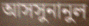
আসসুনানুল